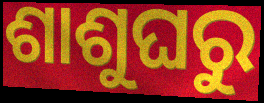
ଶାଶୁଘରୁ